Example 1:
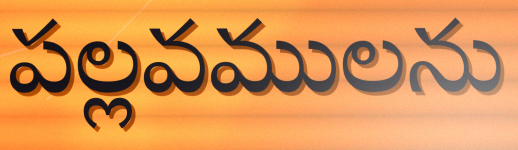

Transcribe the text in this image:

పల్లవములను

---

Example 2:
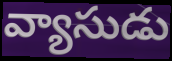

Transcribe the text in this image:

వ్యాసుడు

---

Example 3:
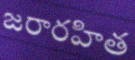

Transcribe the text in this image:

జరారహిత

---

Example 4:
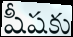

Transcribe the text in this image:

షీషకు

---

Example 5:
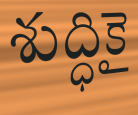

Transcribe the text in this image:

శుద్ధికై